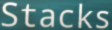
Stacks